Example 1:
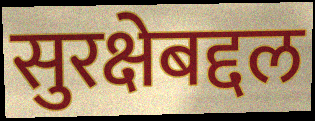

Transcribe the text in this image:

सुरक्षेबद्दल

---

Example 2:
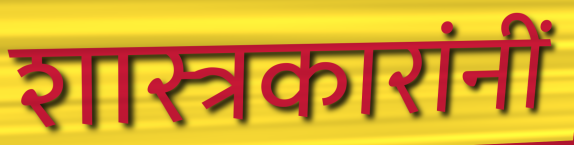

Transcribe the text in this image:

शास्त्रकारांनीं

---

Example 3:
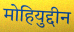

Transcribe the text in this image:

मोहियुद्दीन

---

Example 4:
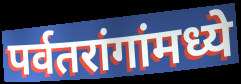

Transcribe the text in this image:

पर्वतरांगांमध्ये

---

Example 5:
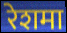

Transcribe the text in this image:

रेशमा